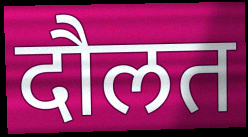
दौलत